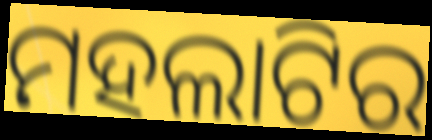
ମହଲାଟିର